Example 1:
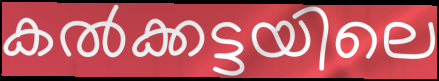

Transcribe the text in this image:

കൽക്കട്ടയിലെ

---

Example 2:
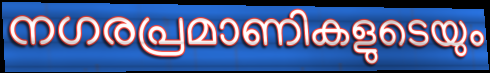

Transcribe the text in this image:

നഗരപ്രമാണികളുടെയും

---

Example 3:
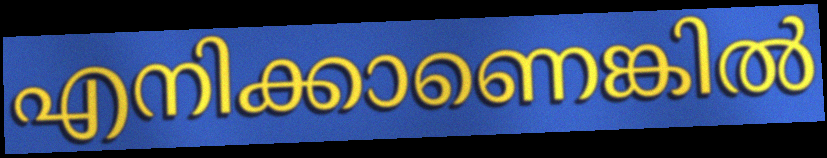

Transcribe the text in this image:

എനിക്കാണെങ്കിൽ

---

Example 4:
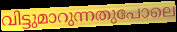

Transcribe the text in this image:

വിട്ടുമാറുന്നതുപോലെ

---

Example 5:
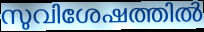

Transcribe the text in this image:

സുവിശേഷത്തിൽ